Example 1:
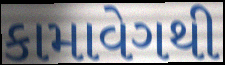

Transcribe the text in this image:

કામાવેગથી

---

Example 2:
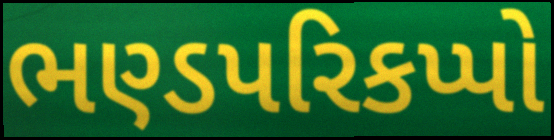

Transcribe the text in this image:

ભણ્ડપરિકપ્પો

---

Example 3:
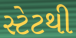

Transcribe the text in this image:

સ્ટેટથી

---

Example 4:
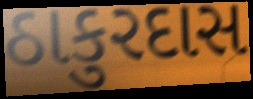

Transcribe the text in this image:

ઠાકુરદાસ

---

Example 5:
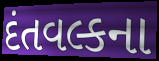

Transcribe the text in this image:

દંતવલ્કના